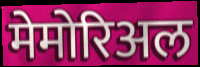
मेमोरिअल